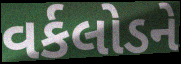
વર્કલોડને